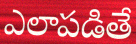
ఎలాపడితే